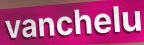
vanchelu